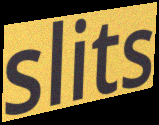
slits